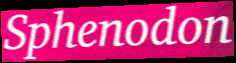
Sphenodon